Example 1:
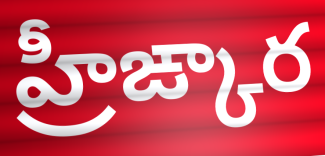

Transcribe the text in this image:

హ్రీఙ్కార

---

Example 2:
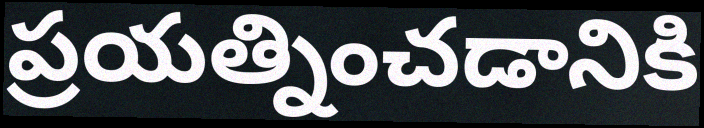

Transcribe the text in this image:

ప్రయత్నించడానికి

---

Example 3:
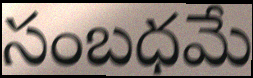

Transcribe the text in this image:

సంబధమే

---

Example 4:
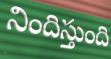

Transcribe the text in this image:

నిందిస్తుంది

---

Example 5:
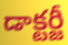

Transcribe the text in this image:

డాక్టర్జీ